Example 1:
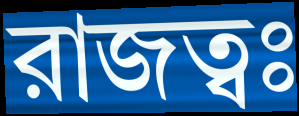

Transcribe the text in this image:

রাজত্বঃ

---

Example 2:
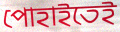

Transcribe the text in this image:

পোহাইতেই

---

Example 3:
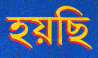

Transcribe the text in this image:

হয়ছি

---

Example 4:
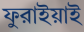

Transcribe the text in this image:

ফুরাইয়াই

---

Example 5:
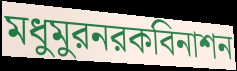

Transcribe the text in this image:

মধুমুরনরকবিনাশন